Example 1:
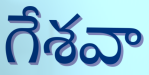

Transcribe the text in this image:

గేశవా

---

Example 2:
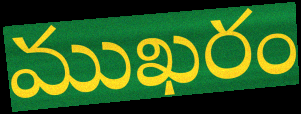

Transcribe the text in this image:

ముఖరం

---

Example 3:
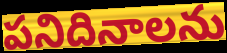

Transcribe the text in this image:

పనిదినాలను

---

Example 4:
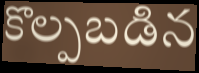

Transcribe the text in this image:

కొల్పబడిన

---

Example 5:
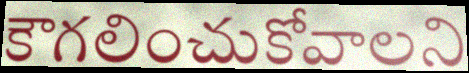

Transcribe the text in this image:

కౌగలించుకోవాలని